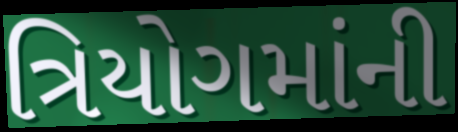
ત્રિયોગમાંની